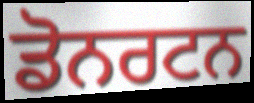
ਡੋਨਰਟਨ